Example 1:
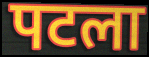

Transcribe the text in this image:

पटला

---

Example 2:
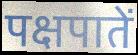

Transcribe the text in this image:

पक्षपातें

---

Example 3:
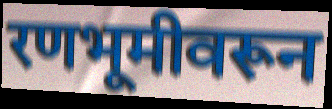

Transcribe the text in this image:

रणभूमीवरून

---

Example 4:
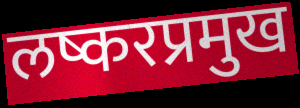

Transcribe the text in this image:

लष्करप्रमुख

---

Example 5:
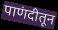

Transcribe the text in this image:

पाणंदीतून